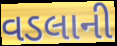
વડલાની